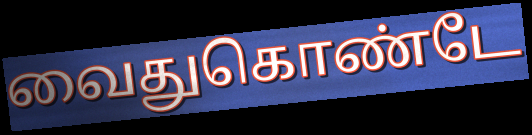
வைதுகொண்டே